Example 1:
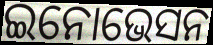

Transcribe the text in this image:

ଇନୋଭେସନ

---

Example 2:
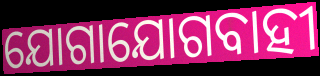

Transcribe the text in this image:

ଯୋଗାଯୋଗବାହୀ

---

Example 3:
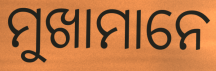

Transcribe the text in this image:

ମୁଖାମାନେ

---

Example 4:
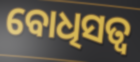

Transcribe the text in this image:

ବୋଧିସତ୍ବ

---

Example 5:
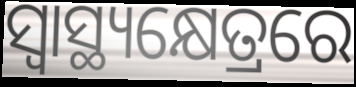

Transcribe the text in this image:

ସ୍ୱାସ୍ଥ୍ୟକ୍ଷେତ୍ରରେ